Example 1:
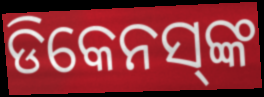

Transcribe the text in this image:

ଡିକେନସ୍‌ଙ୍କ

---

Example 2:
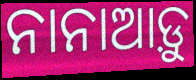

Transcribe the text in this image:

ନାନାଆଡ଼ୁ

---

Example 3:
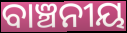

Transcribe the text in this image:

ବାଞ୍ଚନୀୟ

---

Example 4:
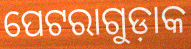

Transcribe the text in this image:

ପେଟରାଗୁଡ଼ାକ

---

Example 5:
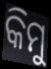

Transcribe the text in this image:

କିମୁ